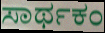
ಸಾರ್ಥಕಂ